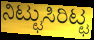
ನಿಟ್ಟುಸಿರಿಟ್ಟ